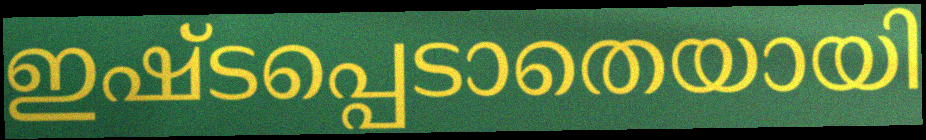
ഇഷ്ടപ്പെടാതെയായി